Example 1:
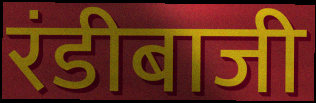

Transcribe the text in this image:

रंडीबाजी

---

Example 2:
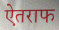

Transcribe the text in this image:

ऐतराफ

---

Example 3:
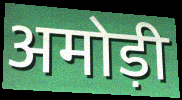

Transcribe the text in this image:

अमोड़ी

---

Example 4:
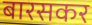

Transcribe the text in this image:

बारसकर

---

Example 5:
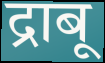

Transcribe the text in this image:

द्राबू